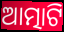
ଆତ୍ମାଟି